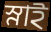
স্নাই